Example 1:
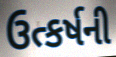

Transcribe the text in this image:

ઉત્કર્ષની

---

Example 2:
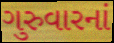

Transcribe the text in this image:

ગુરુવારનાં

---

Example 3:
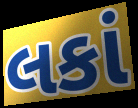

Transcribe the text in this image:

લકાં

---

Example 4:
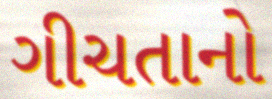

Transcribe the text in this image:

ગીચતાનો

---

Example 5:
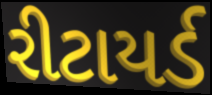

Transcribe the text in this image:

રીટાયર્ડ